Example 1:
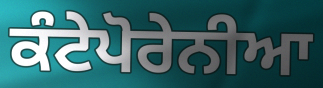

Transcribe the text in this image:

ਕੰਟੇਪੋਰੇਨੀਆ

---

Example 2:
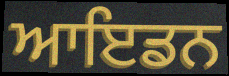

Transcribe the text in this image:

ਆਇਡਨ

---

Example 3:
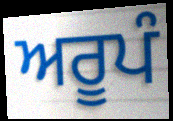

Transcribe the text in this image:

ਅਰੂਪੰ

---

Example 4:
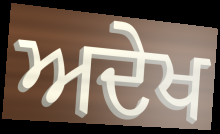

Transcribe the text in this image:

ਅਦੇਖ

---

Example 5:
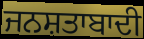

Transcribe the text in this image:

ਜਨਸ਼ਤਾਬਾਦੀ